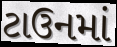
ટાઉનમાં